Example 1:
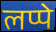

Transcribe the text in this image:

लप्पे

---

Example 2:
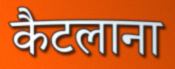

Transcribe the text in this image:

कैटलाना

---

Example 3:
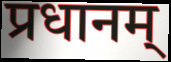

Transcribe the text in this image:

प्रधानम्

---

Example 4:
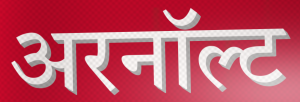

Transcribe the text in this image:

अरनॉल्ट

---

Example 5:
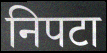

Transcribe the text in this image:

निपटा